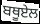
ਬਥੂਏਲ